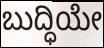
ಬುದ್ಧಿಯೇ